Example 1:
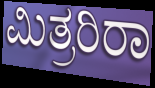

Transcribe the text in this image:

ಮಿತ್ರರಿರಾ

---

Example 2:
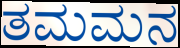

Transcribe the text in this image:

ತಮಮನ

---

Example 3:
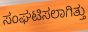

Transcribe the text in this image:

ಸಂಘಟಿಸಲಾಗಿತ್ತು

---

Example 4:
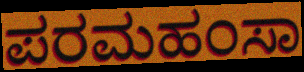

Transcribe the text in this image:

ಪರಮಹಂಸಾ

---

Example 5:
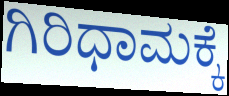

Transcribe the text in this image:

ಗಿರಿಧಾಮಕ್ಕೆ